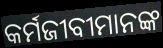
କର୍ମଜୀବୀମାନଙ୍କ